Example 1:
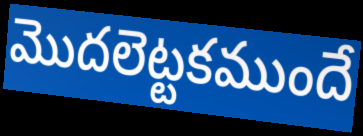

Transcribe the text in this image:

మొదలెట్టకముందే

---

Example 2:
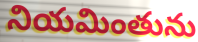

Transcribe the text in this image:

నియమింతును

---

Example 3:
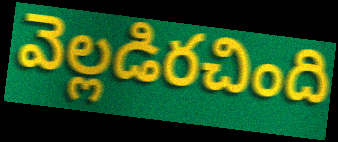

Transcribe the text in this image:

వెల్లడిరచింది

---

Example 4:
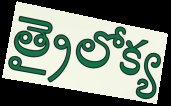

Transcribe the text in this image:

త్రైలోక్య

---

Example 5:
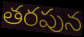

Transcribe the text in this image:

తరపున